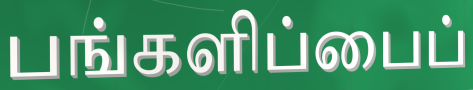
பங்களிப்பைப்